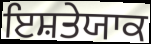
ਇਸ਼ਤੇਯਾਕ